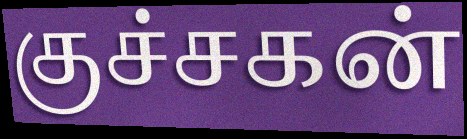
குச்சகன்